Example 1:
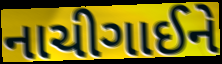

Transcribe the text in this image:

નાચીગાઈને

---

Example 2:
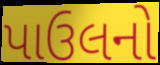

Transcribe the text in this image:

પાઉલનો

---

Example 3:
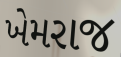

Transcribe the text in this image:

ખેમરાજ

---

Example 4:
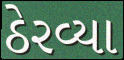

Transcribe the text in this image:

ઠેરવ્યા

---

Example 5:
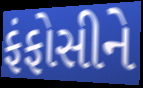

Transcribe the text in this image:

ફંફોસીને